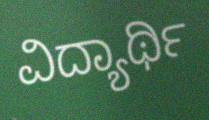
ವಿದ್ಯಾರ್ಥಿ